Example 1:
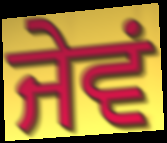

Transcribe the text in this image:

ਜੇਵਂ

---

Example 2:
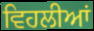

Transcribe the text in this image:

ਵਿਹਲੀਆਂ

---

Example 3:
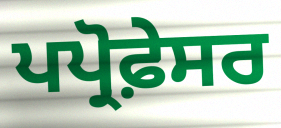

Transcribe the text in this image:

ਪਪ੍ਰੋਫ਼ੇਸਰ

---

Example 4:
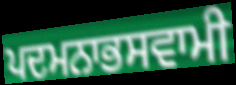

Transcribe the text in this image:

ਪਦਮਨਾਭਸਵਾਮੀ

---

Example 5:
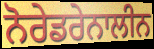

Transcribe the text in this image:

ਨੋਰੇਡਰੇਨਾਲੀਨ